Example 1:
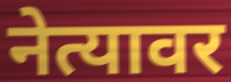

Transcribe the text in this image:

नेत्यावर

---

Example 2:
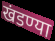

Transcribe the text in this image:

खंडण्या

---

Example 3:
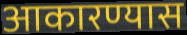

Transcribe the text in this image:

आकारण्यास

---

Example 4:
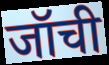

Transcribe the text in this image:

जॉची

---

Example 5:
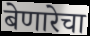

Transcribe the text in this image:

बेणारेचा